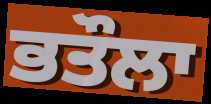
ਭਤੌਲਾ